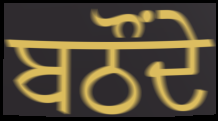
ਬਠੌਂਦੇ